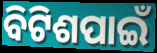
ବିଟିଶପାଇଁ